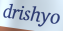
drishyo